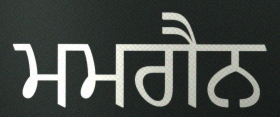
ਮਮਗੈਨ